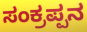
ಸಂಕ್ರಪ್ಪನ